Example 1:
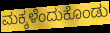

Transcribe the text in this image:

ಮಕ್ಕಳೆಂದುಕೊಂಡು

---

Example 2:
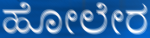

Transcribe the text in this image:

ಹೋಲೇರ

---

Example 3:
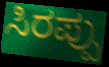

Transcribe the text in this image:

ಸಿರಪ್ಪು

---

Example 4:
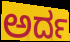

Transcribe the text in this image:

ಅರ್ದ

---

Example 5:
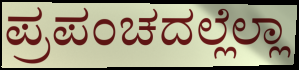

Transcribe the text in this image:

ಪ್ರಪಂಚದಲ್ಲೆಲ್ಲಾ